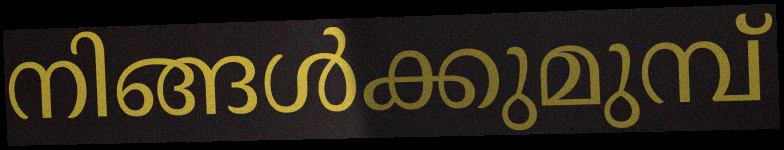
നിങ്ങൾക്കുമുമ്പ്